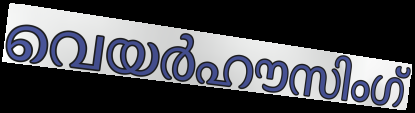
വെയർഹൗസിംഗ്